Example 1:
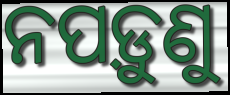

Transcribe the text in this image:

ନପଡ଼ୁଣୁ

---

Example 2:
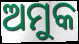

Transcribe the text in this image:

ଅମୁକ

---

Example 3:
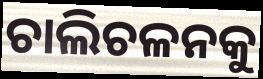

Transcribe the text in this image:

ଚାଲିଚଳନକୁ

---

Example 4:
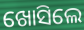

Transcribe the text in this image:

ଖୋସିଲେ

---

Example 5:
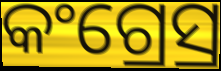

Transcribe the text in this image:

କଂଗ୍ରେସ୍ର